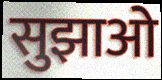
सुझाओ